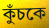
কুঁচকে